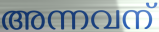
അന്നവന്